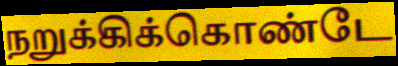
நறுக்கிக்கொண்டே